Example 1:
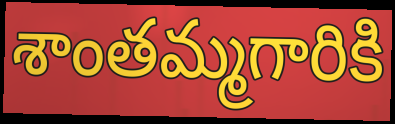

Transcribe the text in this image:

శాంతమ్మగారికి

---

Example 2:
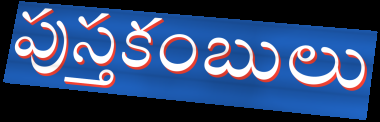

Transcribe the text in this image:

పుస్తకంబులు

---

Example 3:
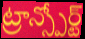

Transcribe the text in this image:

ట్రాన్స్పోర్ట్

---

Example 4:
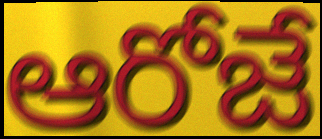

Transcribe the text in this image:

ఆరోజే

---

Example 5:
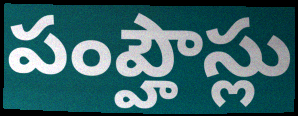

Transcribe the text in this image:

పంప్హౌస్లు